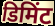
डिमिंट